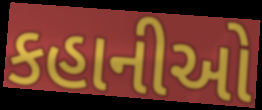
કહાનીઓ